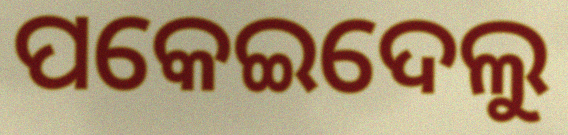
ପକେଇଦେଲୁ